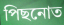
পিছনোত